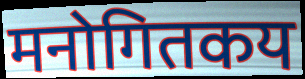
मनोगितकय